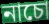
নাচো